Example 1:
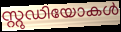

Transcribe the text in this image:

സ്റ്റുഡിയോകൾ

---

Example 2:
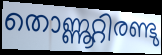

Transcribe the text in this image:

തൊണ്ണൂറ്റിരണ്ടു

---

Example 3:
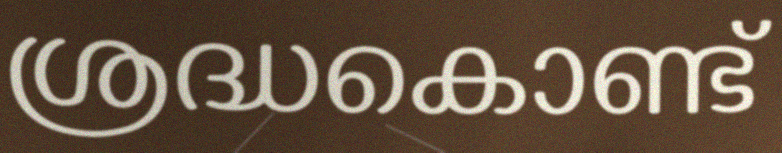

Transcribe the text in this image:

ശ്രദ്ധകൊണ്ട്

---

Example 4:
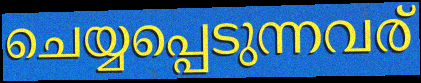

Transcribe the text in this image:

ചെയ്യപ്പെടുന്നവര്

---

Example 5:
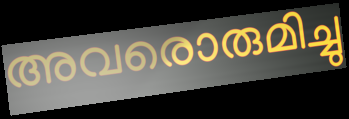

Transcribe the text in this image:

അവരൊരുമിച്ചു